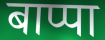
बाप्पा